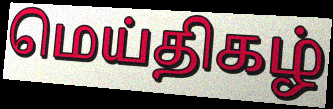
மெய்திகழ்